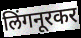
लिंगनूरकर